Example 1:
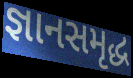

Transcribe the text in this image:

જ્ઞાનસમૃદ્ધ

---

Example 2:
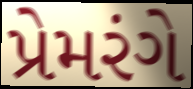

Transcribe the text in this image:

પ્રેમરંગે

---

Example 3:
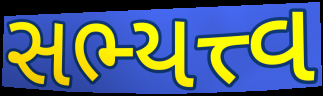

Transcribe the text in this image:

સભ્યત્ત્વ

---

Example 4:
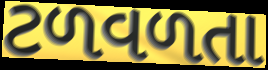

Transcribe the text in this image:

ટળવળતા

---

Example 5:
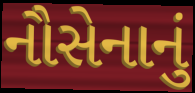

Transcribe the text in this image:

નૌસેનાનું